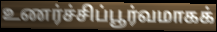
உணர்ச்சிப்பூர்வமாகக்